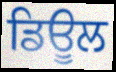
ਡਿਊਲ